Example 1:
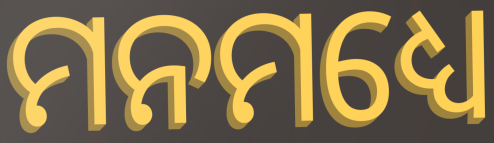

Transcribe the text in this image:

ମନମଧ୍ୟେ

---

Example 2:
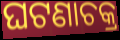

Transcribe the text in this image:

ଘଟଣାଚକ୍ର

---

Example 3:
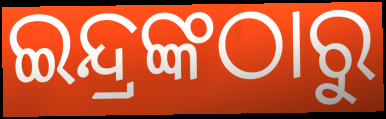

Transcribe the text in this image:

ଇନ୍ଦ୍ରଙ୍କଠାରୁ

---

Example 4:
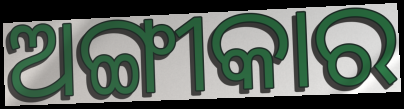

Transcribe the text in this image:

ଅଙ୍ଗୀକାର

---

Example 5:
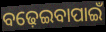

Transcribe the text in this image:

ବଢ଼େଇବାପାଇଁ